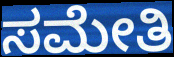
ಸಮೇತಿ